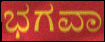
ಭಗವಾ